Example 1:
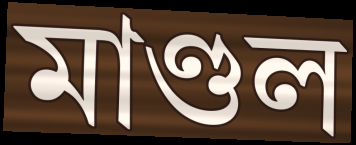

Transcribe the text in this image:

মাণ্ডল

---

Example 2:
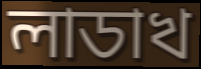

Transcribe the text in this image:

লাডাখ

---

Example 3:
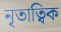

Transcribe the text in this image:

নৃতাত্বিক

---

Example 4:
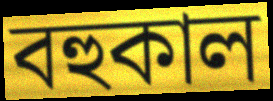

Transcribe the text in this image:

বহুকাল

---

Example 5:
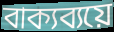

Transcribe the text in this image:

বাক্যব্যয়ে